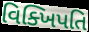
વિક્ખિપતિ